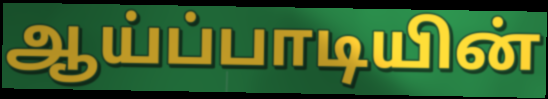
ஆய்ப்பாடியின்